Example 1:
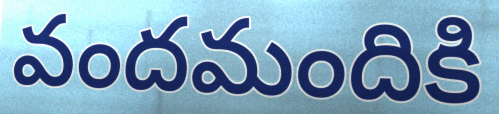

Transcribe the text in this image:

వందమందికి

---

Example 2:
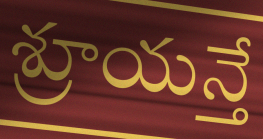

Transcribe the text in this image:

శ్రూయన్తే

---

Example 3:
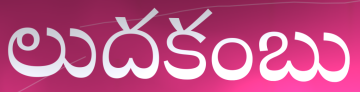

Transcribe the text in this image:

లుదకంబు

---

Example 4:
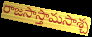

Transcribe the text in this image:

రాజసాస్తామసాశ్చ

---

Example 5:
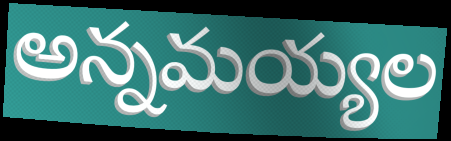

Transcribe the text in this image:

అన్నమయ్యల